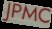
JPMC